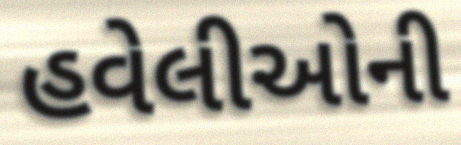
હવેલીઓની